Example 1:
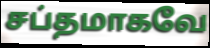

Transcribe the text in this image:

சப்தமாகவே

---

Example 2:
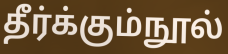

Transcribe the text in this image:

தீர்க்கும்நூல்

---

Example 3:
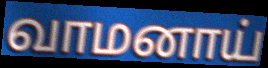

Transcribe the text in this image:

வாமனாய்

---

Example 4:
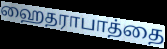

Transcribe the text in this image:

ஹைதராபாத்தை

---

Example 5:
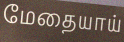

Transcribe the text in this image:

மேதையாய்